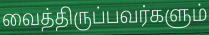
வைத்திருப்பவர்களும்